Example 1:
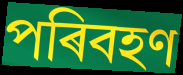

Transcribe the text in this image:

পৰিবহণ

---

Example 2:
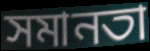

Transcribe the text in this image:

সমানতা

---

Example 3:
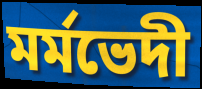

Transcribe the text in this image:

মৰ্মভেদী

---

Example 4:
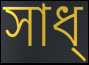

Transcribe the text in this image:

সাধ্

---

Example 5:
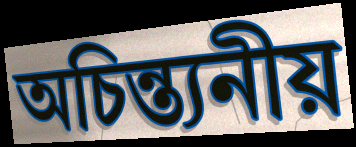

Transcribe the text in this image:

অচিন্ত্যনীয়